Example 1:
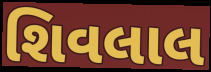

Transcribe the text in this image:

શિવલાલ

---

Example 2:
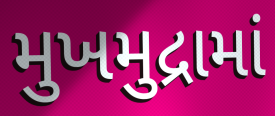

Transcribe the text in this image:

મુખમુદ્રામાં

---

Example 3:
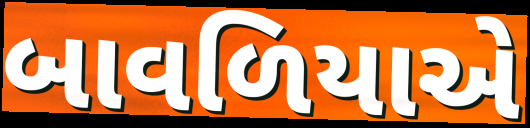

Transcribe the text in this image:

બાવળિયાએ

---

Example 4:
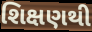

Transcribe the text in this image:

શિક્ષણથી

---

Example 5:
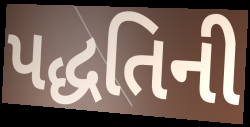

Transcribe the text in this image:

પદ્ધતિની